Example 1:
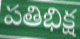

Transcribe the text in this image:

పతిభిక్ష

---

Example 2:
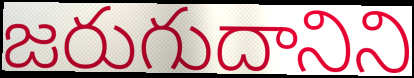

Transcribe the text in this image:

జరుగుదానిని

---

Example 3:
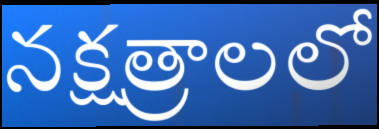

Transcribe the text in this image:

నక్షత్రాలలో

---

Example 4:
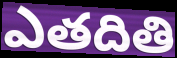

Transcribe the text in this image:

ఎతదితి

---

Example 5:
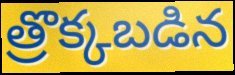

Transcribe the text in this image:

త్రొక్కబడిన